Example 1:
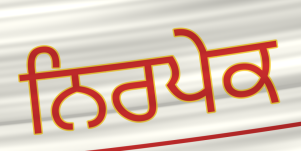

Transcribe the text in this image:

ਨਿਰਪੇਕ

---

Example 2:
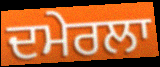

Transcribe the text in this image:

ਦਮੇਰਲਾ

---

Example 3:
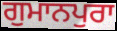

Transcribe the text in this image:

ਗੁਮਾਨਪੁਰਾ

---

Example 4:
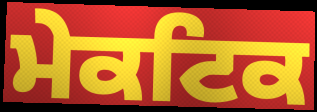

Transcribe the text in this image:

ਮੇਕਟਿਕ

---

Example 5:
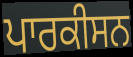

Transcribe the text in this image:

ਪਾਰਕੀਸਨ